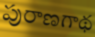
పురాణగాథ